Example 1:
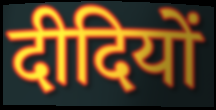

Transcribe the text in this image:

दीदियों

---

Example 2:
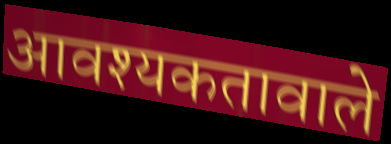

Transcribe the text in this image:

आवश्यकतावाले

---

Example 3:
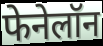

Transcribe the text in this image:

फेनेलॉन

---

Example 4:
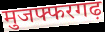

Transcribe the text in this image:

मुजफ्फरगढ़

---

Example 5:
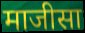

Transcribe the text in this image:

माजीसा